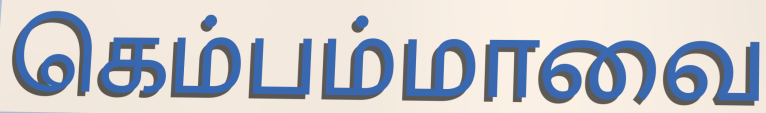
கெம்பம்மாவை